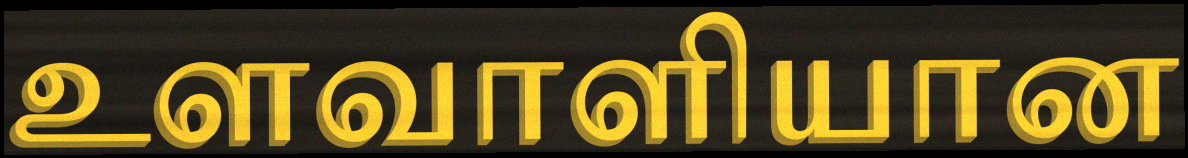
உளவாளியான